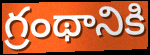
గ్రంథానికి